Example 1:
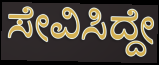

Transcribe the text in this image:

ಸೇವಿಸಿದ್ದೇ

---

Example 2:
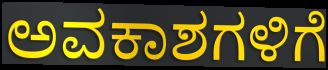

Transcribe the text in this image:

ಅವಕಾಶಗಳಿಗೆ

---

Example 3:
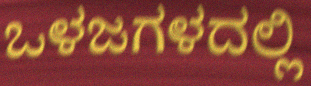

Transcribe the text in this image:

ಒಳಜಗಳದಲ್ಲಿ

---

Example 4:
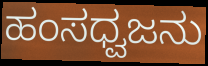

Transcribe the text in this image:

ಹಂಸಧ್ವಜನು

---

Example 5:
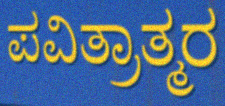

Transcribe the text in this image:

ಪವಿತ್ರಾತ್ಮರ